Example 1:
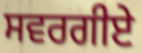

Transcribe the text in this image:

ਸਵਰਗੀਏ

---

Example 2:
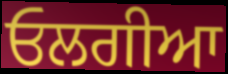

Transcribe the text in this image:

ਓਲਗੀਆ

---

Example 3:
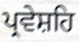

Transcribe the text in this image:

ਪ੍ਰਵੇਸ਼ਹਿ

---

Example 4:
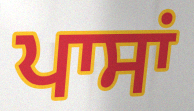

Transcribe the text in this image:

ਪਾਸਾਂ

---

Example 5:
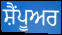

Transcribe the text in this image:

ਸ਼ੈਂਪੂਅਰ